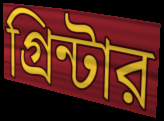
গ্রিন্টার